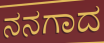
ನನಗಾದ